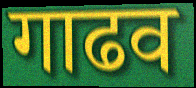
गाढव